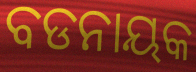
ବଡନାୟକ